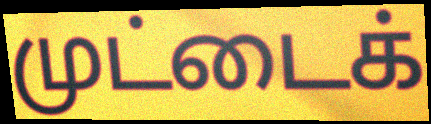
முட்டைக்